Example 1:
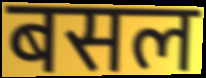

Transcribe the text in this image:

बसल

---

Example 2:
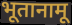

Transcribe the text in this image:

भूतानामू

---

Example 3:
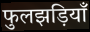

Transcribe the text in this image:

फुलझड़ियाँ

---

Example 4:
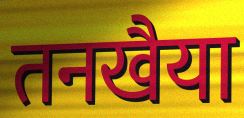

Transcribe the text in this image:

तनखैया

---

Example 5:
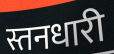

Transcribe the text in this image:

स्तनधारी